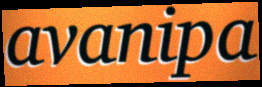
avanipa